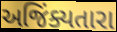
અજિંક્યતારા